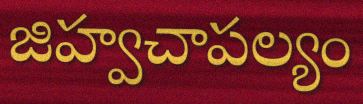
జిహ్వచాపల్యం